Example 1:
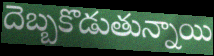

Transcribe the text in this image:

దెబ్బకొడుతున్నాయి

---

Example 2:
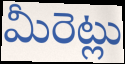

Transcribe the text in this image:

మీరెట్లు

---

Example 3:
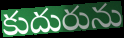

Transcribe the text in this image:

కుదురును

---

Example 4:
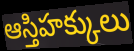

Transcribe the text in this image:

ఆస్తిహక్కులు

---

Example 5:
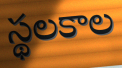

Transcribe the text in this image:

స్థలకాల